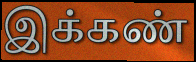
இக்கண்